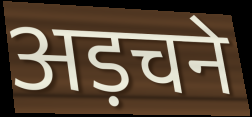
अड़चने